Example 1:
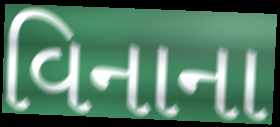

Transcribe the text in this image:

વિનાના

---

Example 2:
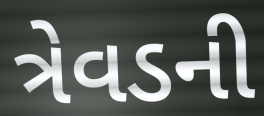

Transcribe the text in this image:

ત્રેવડની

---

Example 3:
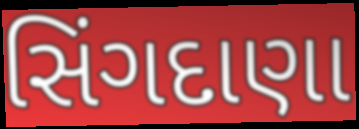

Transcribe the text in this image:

સિંગદાણા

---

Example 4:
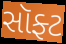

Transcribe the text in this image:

સૉફ્ટ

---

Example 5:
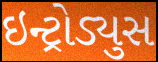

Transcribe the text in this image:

ઇન્ટ્રોડ્યુસ